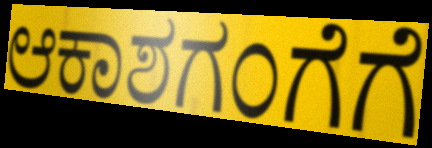
ಆಕಾಶಗಂಗೆಗೆ